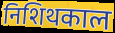
निशिथकाल